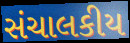
સંચાલકીય